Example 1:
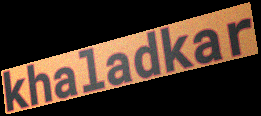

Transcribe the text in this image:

khaladkar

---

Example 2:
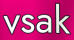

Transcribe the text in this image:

vsak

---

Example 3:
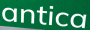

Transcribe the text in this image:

antica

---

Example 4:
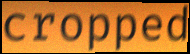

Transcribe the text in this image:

cropped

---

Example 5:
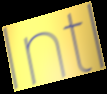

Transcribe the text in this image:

Intl